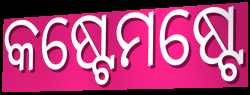
କଷ୍ଟେମଷ୍ଟେ